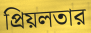
প্রিয়লতার